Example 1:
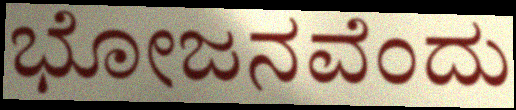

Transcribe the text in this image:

ಭೋಜನವೆಂದು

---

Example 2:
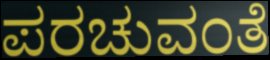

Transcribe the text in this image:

ಪರಚುವಂತೆ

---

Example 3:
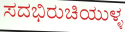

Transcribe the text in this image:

ಸದಭಿರುಚಿಯುಳ್ಳ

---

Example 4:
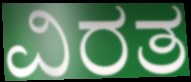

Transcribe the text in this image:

ವಿರತ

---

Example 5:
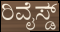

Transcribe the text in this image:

ರಿವೈಸ್ಡ್